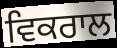
ਵਿਕਰਾਲ